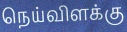
நெய்விளக்கு